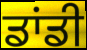
ਡਾਂਡੀ